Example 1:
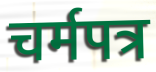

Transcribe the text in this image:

चर्मपत्र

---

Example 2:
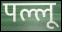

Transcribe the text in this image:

पल्लू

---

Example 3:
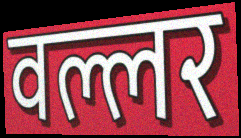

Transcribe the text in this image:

वल्लर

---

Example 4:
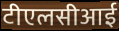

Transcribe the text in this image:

टीएलसीआई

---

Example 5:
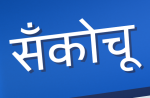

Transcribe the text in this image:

सँकोचू